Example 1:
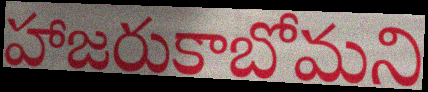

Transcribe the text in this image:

హాజరుకాబోమని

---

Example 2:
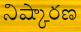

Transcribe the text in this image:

నిష్కారణ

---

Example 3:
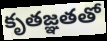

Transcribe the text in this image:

కృతజ్ఞతతో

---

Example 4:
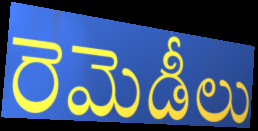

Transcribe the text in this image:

రెమెడీలు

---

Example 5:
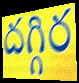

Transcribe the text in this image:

దగ్గిర